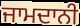
ਜਾਮਦਾਨੀ